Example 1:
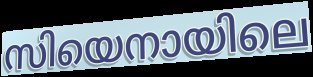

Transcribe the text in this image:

സിയെനായിലെ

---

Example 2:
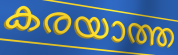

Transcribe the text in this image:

കരയാത്ത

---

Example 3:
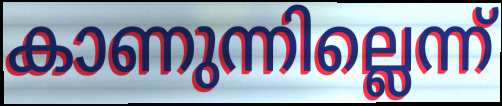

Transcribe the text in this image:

കാണുന്നില്ലെന്ന്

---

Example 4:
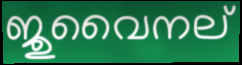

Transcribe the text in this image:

ജുവൈനല്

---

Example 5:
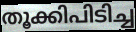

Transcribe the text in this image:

തൂക്കിപിടിച്ച